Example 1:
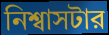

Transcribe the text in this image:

নিশ্বাসটার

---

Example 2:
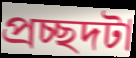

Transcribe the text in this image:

প্রচ্ছদটা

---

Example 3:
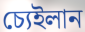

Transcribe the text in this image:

চ্যেইলান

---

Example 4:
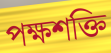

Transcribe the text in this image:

পক্ষশক্তি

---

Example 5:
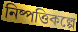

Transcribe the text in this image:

নিষ্পত্তিকল্পে